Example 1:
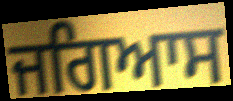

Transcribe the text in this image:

ਜਗਿਆਸ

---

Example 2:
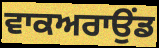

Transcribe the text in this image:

ਵਾਕਅਰਾਉਂਡ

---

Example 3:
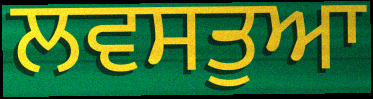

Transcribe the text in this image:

ਲਵਸਤੁਆ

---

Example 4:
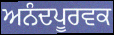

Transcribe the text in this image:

ਅਨੰਦਪੂਰਵਕ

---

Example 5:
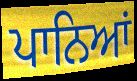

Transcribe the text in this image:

ਪਾਨਿਆਂ